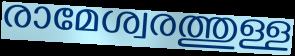
രാമേശ്വരത്തുള്ള